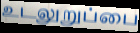
உடலுறுப்பை